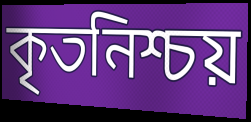
কৃতনিশ্চয়